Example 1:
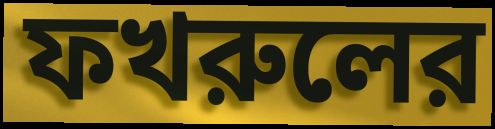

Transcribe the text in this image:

ফখরুলের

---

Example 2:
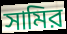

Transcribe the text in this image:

সামির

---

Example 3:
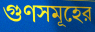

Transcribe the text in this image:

গুণসমূহের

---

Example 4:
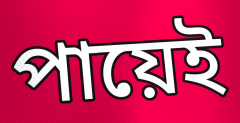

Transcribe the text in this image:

পায়েই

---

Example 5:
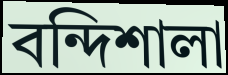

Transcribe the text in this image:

বন্দিশালা